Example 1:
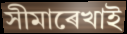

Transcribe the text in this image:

সীমাৰেখাই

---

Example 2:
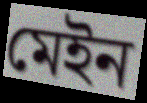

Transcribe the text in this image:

মেইন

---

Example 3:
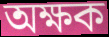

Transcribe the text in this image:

অক্ষক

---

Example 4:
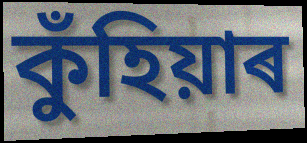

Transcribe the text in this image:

কুঁহিয়াৰ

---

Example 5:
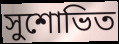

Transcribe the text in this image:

সুশোভিত